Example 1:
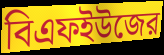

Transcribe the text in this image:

বিএফইউজের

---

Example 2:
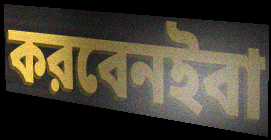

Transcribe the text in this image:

করবেনইবা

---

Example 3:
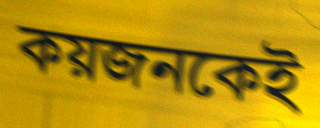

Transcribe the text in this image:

কয়জনকেই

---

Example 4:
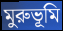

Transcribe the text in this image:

মুরুভূমি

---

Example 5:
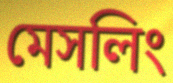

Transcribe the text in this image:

মেসলিং